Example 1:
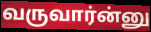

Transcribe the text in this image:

வருவார்ன்னு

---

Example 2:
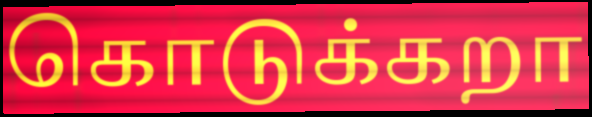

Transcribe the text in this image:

கொடுக்கறா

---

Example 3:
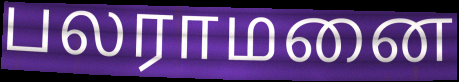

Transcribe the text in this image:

பலராமனை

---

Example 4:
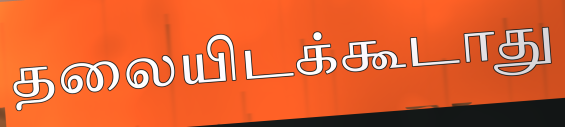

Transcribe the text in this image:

தலையிடக்கூடாது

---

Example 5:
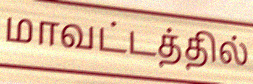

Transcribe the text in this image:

மாவட்டத்தில்